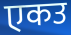
एकउ